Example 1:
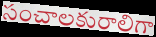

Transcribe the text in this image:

సంచాలకురాలిగా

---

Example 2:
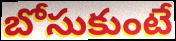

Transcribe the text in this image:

బోసుకుంటే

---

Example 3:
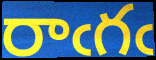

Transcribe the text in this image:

రాఁగఁ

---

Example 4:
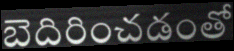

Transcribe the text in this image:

బెదిరించడంతో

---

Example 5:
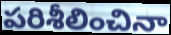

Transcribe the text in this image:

పరిశీలించినా